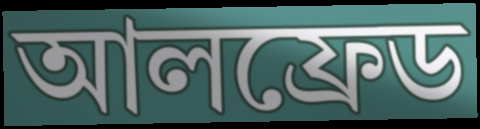
আলফ্ৰেড